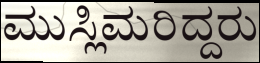
ಮುಸ್ಲಿಮರಿದ್ದರು